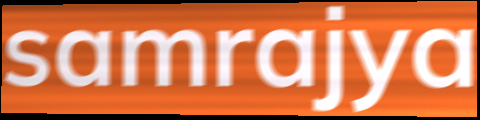
samrajya